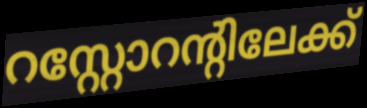
റസ്റ്റോറന്റിലേക്ക്